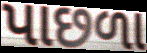
પાછળા